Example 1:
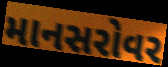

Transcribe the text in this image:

માનસરોવર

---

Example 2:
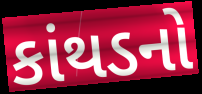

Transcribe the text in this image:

કાંથડનો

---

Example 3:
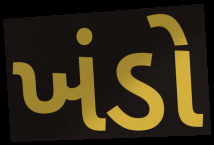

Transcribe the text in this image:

ખંડો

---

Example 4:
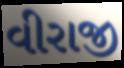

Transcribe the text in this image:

વીરાજી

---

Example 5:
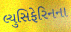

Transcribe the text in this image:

લ્યુસિફેરિનના